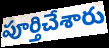
పూర్తిచేశారు